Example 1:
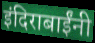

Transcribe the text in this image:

इंदिराबाईंनी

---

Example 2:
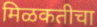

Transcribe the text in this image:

मिळकतीचा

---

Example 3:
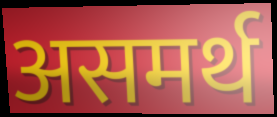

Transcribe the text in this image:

असमर्थ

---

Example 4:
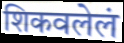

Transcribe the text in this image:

शिकवलेलं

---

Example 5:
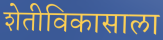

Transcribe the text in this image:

शेतीविकासाला